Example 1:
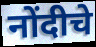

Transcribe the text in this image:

नोंदीचे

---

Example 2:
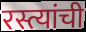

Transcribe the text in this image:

रस्त्यांची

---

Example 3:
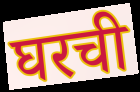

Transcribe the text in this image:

घरची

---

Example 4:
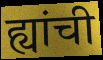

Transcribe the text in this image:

ह्यांची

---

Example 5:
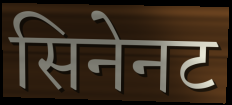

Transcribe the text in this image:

सिनेनट